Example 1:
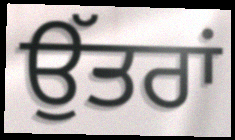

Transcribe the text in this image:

ਉੱਤਰਾਂ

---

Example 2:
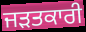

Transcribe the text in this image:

ਜੜਤਕਾਰੀ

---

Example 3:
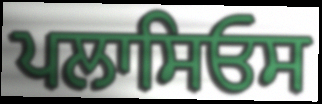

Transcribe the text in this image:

ਪਲਾਸਿਓਸ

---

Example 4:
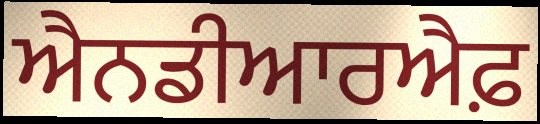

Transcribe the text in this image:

ਐਨਡੀਆਰਐਫ਼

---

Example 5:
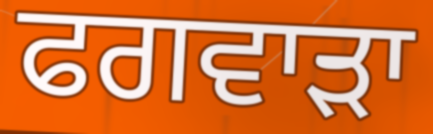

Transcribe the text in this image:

ਫਗਵਾੜਾ